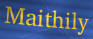
Maithily